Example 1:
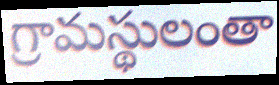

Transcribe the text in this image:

గ్రామస్థులంతా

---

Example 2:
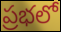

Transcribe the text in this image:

ప్రభలో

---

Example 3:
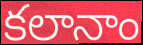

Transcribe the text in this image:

కలానాం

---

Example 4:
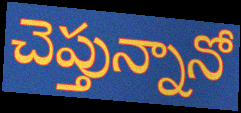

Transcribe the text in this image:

చెప్తున్నానో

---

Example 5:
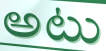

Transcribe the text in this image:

అటు